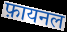
फ़ायनल